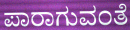
ಪಾರಾಗುವಂತೆ